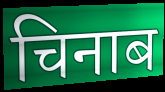
चिनाब